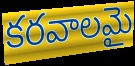
కరవాలమై